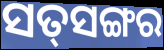
ସତ୍‌ସଙ୍ଗର